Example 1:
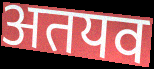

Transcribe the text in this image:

अतयव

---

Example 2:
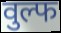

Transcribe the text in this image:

वुल्फ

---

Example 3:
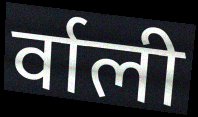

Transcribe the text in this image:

र्वाली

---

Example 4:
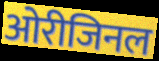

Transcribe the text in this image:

ओरीजिनल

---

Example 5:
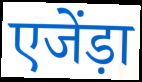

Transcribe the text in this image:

एजेंड़ा